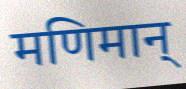
मणिमान्